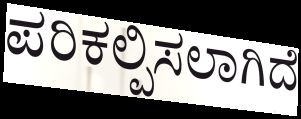
ಪರಿಕಲ್ಪಿಸಲಾಗಿದೆ